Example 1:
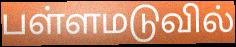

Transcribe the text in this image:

பள்ளமடுவில்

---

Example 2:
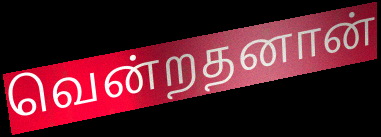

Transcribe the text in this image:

வென்றதனான்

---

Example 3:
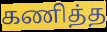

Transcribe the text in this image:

கணித்த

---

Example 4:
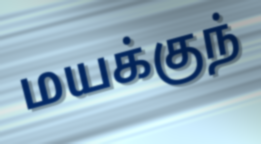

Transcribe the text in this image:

மயக்குந்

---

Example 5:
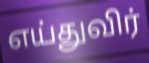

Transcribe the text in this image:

எய்துவிர்